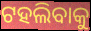
ଟହଲିବାକୁ